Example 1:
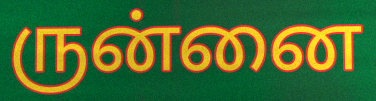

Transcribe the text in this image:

ருன்னை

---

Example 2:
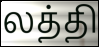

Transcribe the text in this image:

லத்தி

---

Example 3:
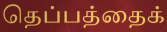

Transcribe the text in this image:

தெப்பத்தைக்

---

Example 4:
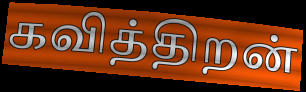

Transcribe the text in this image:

கவித்திறன்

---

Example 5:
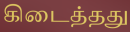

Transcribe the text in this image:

கிடைத்தது